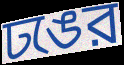
ঢঙের